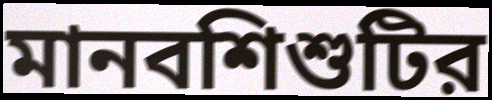
মানবশিশুটির